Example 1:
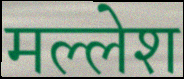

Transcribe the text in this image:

मल्लेश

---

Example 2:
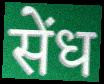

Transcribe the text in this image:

सेंध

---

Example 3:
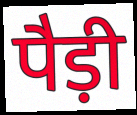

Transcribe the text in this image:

पैड़ी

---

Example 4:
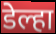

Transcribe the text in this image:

डेल्हा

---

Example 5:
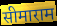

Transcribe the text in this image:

सीमाराम